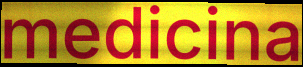
medicina